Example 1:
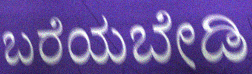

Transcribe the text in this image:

ಬರೆಯಬೇಡಿ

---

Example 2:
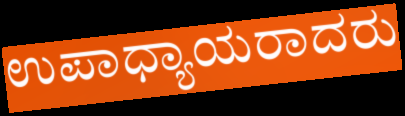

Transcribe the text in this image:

ಉಪಾಧ್ಯಾಯರಾದರು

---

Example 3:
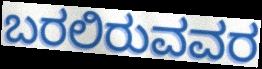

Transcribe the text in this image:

ಬರಲಿರುವವರ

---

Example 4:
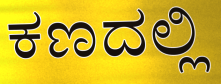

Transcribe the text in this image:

ಕಣದಲ್ಲಿ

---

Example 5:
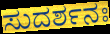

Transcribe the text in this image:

ಸುದರ್ಶನಃ